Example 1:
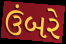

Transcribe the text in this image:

ઉંબરે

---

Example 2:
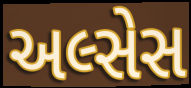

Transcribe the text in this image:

અલ્સેસ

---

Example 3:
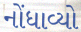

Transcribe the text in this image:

નોંધાવ્યો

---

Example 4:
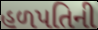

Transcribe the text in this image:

હળપતિની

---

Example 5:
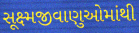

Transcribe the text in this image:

સૂક્ષ્મજીવાણુઓમાંથી